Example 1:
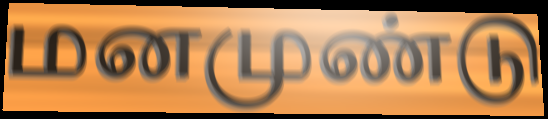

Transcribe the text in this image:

மனமுண்டு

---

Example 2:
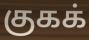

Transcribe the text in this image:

குகக்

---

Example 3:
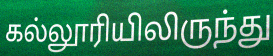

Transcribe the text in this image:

கல்லூரியிலிருந்து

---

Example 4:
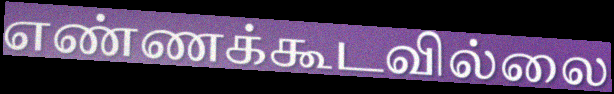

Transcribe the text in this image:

எண்ணக்கூடவில்லை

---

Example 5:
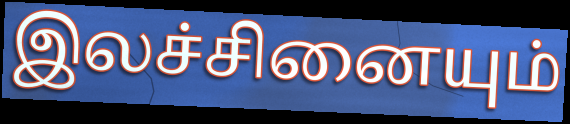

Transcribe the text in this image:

இலச்சினையும்